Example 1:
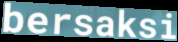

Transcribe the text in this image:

bersaksi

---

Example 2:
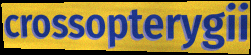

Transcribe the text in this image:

crossopterygii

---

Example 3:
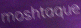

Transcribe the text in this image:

moshtaque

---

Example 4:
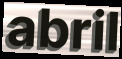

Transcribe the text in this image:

abril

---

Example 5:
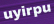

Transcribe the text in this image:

uyirpu